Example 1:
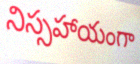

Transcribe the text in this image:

నిస్సహాయంగా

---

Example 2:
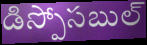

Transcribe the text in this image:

డిస్పోసబుల్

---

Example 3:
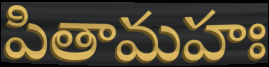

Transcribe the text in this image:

పితామహః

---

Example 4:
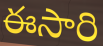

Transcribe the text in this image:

ఈసారి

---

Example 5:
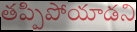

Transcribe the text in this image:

తప్పిపోయాడని